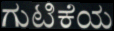
ಗುಟಿಕೆಯ